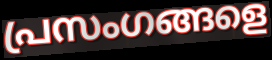
പ്രസംഗങ്ങളെ